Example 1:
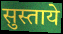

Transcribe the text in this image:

सुस्ताये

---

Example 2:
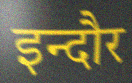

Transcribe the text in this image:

इन्दौर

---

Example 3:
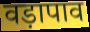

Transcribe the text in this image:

वड़ापाव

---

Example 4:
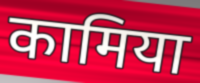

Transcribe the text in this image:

कामिया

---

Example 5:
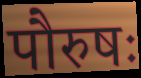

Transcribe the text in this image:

पौरुषः